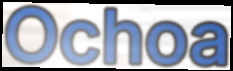
Ochoa